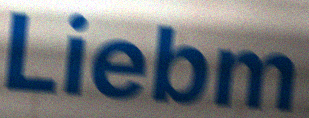
Liebm